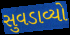
સુવડાવ્યો